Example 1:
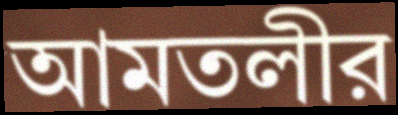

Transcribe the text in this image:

আমতলীর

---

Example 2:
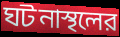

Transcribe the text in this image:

ঘটনাস্থলের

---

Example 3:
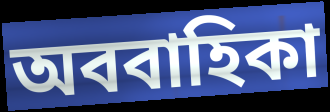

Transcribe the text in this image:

অববাহিকা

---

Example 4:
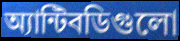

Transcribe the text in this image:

অ্যান্টিবডিগুলো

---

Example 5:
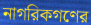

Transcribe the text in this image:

নাগরিকগণের